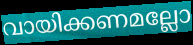
വായിക്കണമല്ലോ